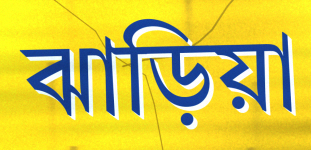
ঝাড়িয়া